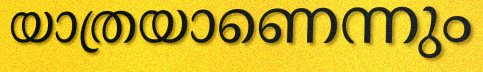
യാത്രയാണെന്നും